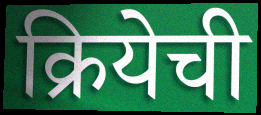
क्रियेची